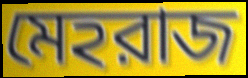
মেহরাজ